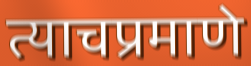
त्याचप्रमाणे